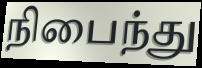
நிபைந்து